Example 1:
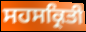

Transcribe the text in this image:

ਸਹਸਕ੍ਰਿਤੀ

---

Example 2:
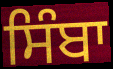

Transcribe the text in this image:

ਸਿੰਬਾ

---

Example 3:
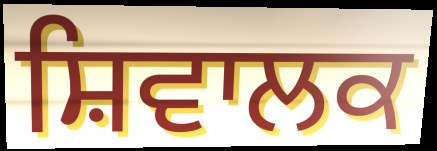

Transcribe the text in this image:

ਸ਼ਿਵਾਲਕ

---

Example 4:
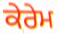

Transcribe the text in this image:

ਕੇਰੇਮ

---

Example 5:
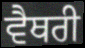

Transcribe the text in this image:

ਵੈਥਰੀ